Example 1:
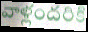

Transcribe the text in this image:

వాళ్లందరికి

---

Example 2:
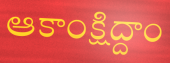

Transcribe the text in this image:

ఆకాంక్షిద్దాం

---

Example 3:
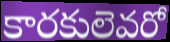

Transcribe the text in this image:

కారకులెవరో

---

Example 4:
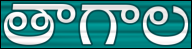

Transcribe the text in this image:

తాగాల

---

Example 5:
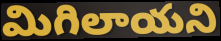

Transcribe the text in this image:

మిగిలాయని